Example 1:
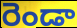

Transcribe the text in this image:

రెండా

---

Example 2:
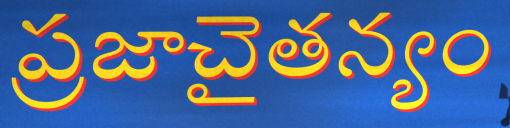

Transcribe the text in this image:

ప్రజాచైతన్యం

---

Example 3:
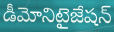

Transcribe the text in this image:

డీమోనిటైజేషన్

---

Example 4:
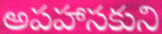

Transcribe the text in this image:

అపహాసకుని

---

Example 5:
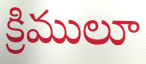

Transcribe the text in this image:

క్రిములూ